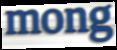
mong